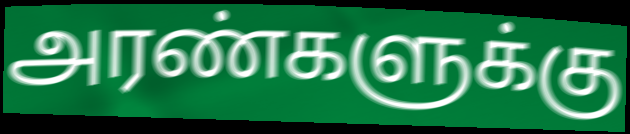
அரண்களுக்கு